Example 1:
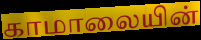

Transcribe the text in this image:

காமாலையின்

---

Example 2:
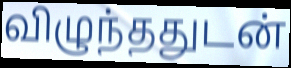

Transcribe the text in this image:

விழுந்ததுடன்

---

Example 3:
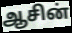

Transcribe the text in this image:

ஆசின்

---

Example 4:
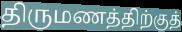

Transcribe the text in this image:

திருமணத்திற்குத்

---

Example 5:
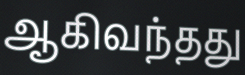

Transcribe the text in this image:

ஆகிவந்தது